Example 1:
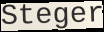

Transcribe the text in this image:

Steger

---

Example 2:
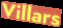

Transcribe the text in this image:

Villars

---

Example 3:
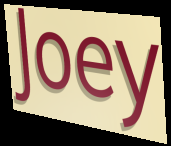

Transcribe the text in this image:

Joey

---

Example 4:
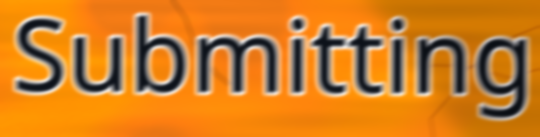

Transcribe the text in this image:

Submitting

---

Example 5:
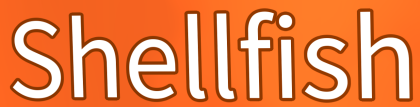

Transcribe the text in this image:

Shellfish